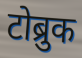
टोब्रुक